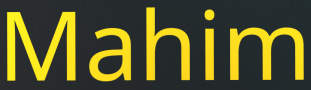
Mahim